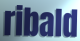
ribald